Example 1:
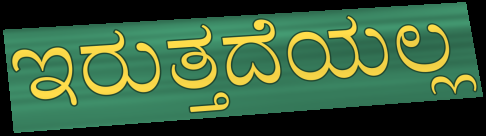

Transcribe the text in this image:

ಇರುತ್ತದೆಯಲ್ಲ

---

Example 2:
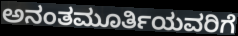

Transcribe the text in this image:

ಅನಂತಮೂರ್ತಿಯವರಿಗೆ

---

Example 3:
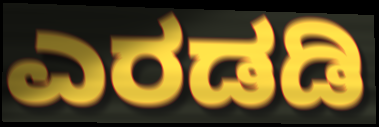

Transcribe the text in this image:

ಎರಡಡಿ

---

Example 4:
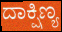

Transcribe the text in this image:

ದಾಕ್ಷಿಣ್ಯ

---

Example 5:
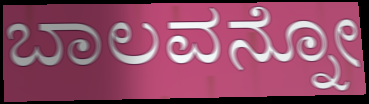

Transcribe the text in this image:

ಬಾಲವನ್ನೋ